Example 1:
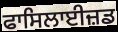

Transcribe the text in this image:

ਫਾਸਿਲਾਈਜ਼ਡ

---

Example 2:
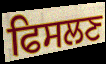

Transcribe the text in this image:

ਫਿਸਲਣ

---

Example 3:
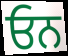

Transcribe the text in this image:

ਓਨ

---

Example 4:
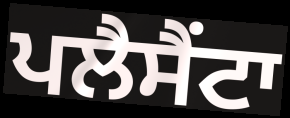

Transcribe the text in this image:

ਪਲੈਸੈਂਟਾ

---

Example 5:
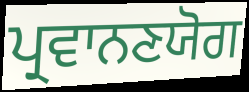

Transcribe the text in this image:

ਪ੍ਰਵਾਨਣਯੋਗ